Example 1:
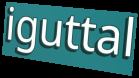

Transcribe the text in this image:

iguttal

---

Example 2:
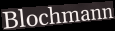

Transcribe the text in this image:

Blochmann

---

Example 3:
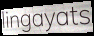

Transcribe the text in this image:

lingayats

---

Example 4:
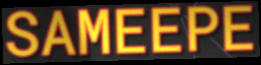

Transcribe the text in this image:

SAMEEPE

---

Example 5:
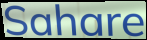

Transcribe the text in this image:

Sahare